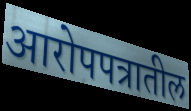
आरोपपत्रातील